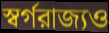
স্বর্গরাজ্যও